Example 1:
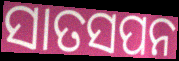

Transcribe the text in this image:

ସାତସପନ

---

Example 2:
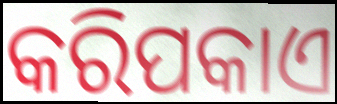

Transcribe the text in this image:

କରିପକାଏ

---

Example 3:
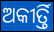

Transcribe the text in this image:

ଅକୀର୍ତ୍ତି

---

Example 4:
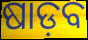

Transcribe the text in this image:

ଷାଡ଼ବ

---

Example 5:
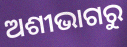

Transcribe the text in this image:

ଅଶୀଭାଗରୁ